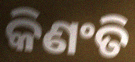
କିଣଂତି